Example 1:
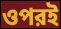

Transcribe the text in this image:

ওপরই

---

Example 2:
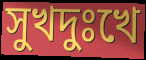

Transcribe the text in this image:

সুখদুঃখে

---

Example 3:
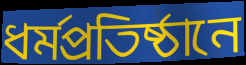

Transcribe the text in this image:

ধর্মপ্রতিষ্ঠানে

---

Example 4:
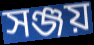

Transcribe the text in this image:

সঞ্জয়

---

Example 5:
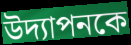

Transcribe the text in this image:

উদ্যাপনকে